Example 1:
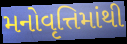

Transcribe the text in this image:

મનોવૃત્તિમાંથી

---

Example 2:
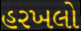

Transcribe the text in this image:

હરખલો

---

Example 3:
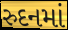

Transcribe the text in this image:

રુદનમાં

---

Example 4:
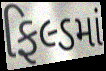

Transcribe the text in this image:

ફિલ્ડમાં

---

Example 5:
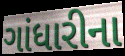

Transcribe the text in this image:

ગાંધારીના